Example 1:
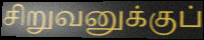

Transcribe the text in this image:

சிறுவனுக்குப்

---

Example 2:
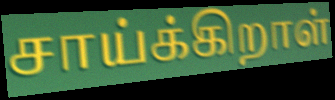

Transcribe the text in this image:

சாய்க்கிறாள்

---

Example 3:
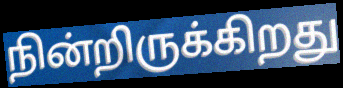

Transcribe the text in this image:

நின்றிருக்கிறது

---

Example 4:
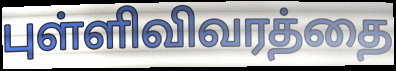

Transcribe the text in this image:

புள்ளிவிவரத்தை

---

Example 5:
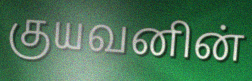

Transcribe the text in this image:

குயவனின்